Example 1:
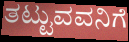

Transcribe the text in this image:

ತಟ್ಟುವವನಿಗೆ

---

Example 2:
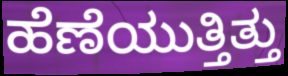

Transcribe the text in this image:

ಹೆಣೆಯುತ್ತಿತ್ತು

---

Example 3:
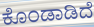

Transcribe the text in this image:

ಕೊಂಡಾಡಿದೆ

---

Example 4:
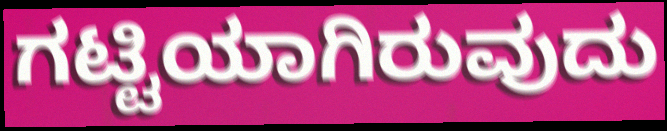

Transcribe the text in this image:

ಗಟ್ಟಿಯಾಗಿರುವುದು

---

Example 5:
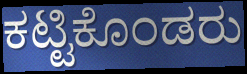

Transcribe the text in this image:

ಕಟ್ಟಿಕೊಂಡರು